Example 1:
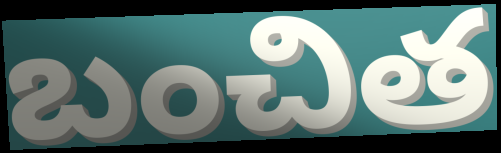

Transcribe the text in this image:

బంచిత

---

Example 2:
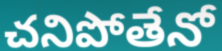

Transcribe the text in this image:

చనిపోతేనో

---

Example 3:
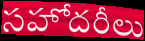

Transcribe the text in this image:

సహోదరీలు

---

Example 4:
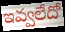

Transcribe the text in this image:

ఇవ్వలేదో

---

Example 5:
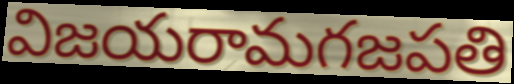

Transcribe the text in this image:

విజయరామగజపతి